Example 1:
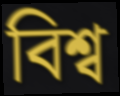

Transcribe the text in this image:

বিশ্ব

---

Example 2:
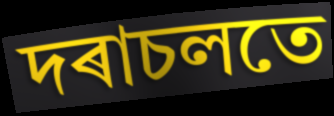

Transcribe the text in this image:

দৰাচলতে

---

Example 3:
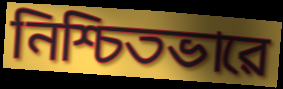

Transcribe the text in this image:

নিশ্চিতভাৱে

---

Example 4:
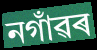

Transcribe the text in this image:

নগাঁৱৰ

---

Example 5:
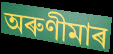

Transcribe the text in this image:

অৰুণীমাৰ